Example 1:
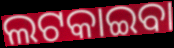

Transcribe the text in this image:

ଲଟକାଇବା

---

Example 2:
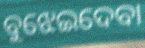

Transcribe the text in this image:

ବୁଝେଇଦେବା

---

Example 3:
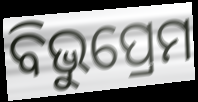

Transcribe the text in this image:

ବିଭୁପ୍ରେମ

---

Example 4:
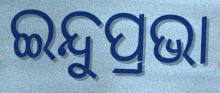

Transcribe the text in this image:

ଇନ୍ଦୁପ୍ରଭା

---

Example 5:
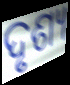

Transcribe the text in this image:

ଦୃଶ୍ଯ